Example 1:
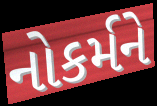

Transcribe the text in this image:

નોકર્મને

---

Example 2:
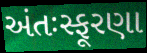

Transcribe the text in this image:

અંતઃસ્ફૂરણા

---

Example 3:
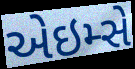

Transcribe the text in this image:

એઇમ્સે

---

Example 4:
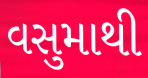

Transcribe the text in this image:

વસુમાથી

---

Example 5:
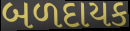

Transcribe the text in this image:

બળદાયક